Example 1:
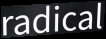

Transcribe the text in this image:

radical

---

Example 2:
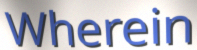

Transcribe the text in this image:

Wherein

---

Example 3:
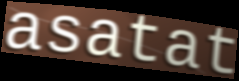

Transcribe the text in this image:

asatat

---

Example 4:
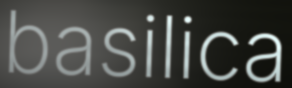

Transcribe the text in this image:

basilica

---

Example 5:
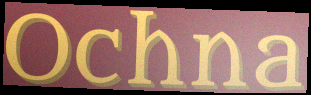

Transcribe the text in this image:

Ochna